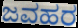
ಜವಹರ